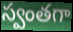
స్వంతగా